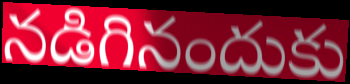
నడిగినందుకు